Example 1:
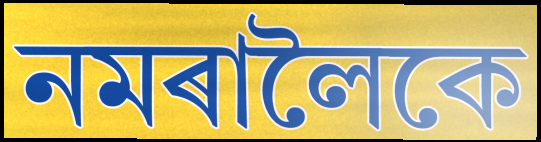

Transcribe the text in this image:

নমৰালৈকে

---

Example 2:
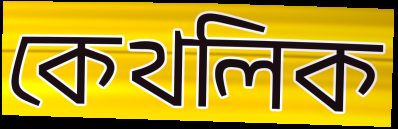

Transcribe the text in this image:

কেথলিক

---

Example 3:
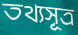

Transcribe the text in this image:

তথ্যসূত্ৰ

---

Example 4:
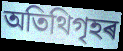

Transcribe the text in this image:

অতিথিগৃহৰ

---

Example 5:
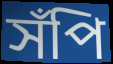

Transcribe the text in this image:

সঁপি